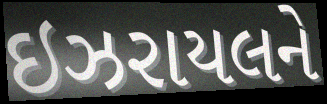
ઇઝરાયલને